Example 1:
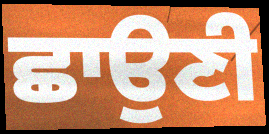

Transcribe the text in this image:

ਛਾਉਣੀ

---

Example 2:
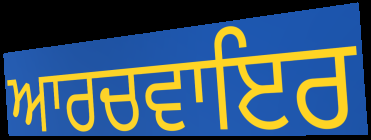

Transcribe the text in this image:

ਆਰਚਵਾਇਰ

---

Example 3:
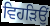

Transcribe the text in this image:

ਵਿਹੜਿਉਂ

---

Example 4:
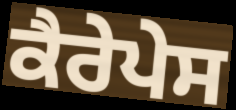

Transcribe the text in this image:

ਕੈਰੇਪੇਸ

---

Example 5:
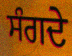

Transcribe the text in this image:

ਸੰਗਦੇ